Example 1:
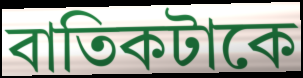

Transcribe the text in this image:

বাতিকটাকে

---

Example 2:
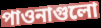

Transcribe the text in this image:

পাওনাগুলো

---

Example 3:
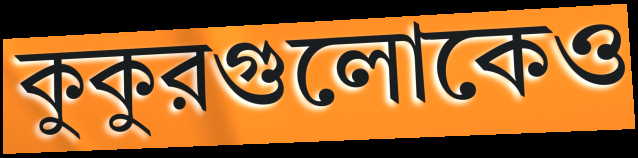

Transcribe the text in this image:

কুকুরগুলোকেও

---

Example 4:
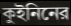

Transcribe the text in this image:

কুইনিনের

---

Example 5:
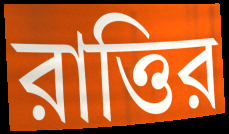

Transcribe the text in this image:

রাত্তির